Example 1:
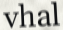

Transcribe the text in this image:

vhal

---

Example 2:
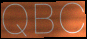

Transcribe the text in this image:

QBC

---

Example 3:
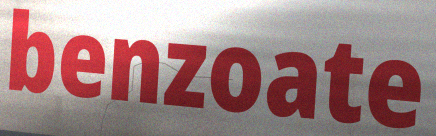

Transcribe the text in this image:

benzoate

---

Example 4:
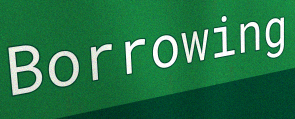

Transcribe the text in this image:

Borrowing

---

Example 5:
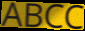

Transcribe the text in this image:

ABCC